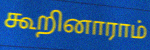
கூறினாராம்